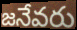
జనేవరు